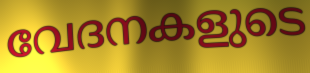
വേദനകളുടെ